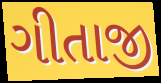
ગીતાજી